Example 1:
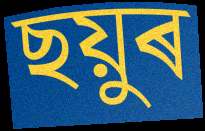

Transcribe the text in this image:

ছয়ুৰ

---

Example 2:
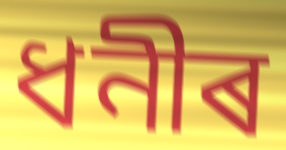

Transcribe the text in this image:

ধনীৰ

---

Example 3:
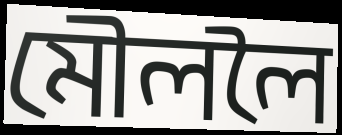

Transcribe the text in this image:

মৌললৈ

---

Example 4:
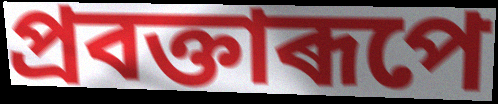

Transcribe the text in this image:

প্ৰবক্তাৰূপে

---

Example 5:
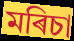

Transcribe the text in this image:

মৰিচা